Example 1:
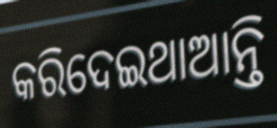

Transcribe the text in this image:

କରିଦେଇଥାଆନ୍ତି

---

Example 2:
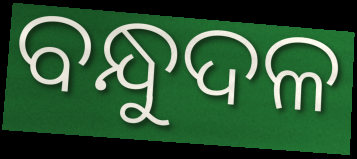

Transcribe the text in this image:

ବନ୍ଧୁଦଳ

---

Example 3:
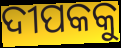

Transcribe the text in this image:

ଦୀପକକୁ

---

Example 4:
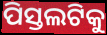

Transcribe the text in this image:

ପିସ୍ତଲଟିକୁ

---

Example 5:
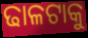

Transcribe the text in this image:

ଢାଳଟାକୁ